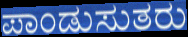
ಪಾಂಡುಸುತರು